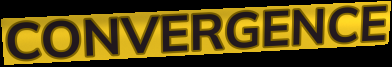
CONVERGENCE